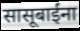
सासूबाईंना